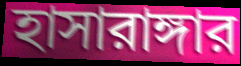
হাসারাঙ্গার